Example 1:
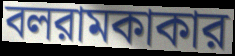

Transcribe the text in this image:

বলরামকাকার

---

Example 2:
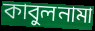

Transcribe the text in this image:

কাবুলনামা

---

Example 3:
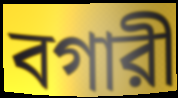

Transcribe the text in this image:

বগারী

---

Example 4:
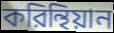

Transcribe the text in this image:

করিন্থিয়ান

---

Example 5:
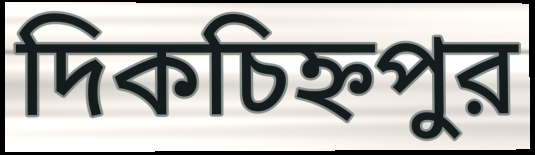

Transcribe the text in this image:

দিকচিহ্নপুর